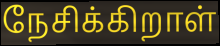
நேசிக்கிறாள்